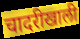
चादरीखाली